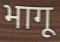
भागू